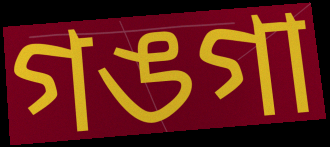
গঙগা